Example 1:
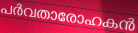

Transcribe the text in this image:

പർവതാരോഹകൻ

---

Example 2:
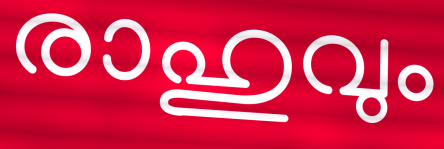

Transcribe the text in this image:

രാഹുവും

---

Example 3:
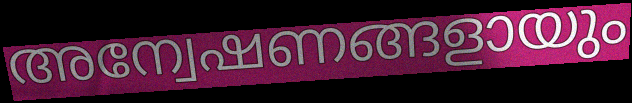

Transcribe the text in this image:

അന്വേഷണങ്ങളായും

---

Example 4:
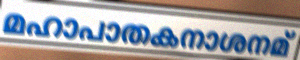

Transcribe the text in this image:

മഹാപാതകനാശനമ്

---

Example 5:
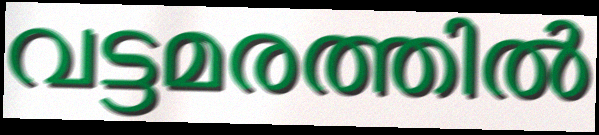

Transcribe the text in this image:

വട്ടമരത്തിൽ